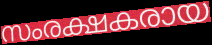
സംരക്ഷകരായ